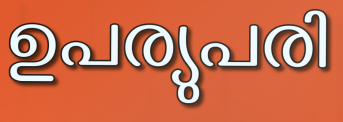
ഉപര്യുപരി